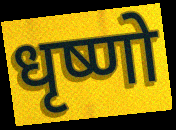
धृष्णो